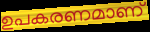
ഉപകരണമാണ്